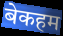
बेकहम